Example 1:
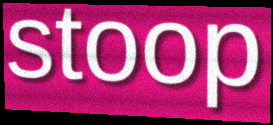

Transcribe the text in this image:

stoop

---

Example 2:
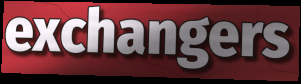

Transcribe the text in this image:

exchangers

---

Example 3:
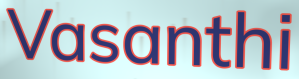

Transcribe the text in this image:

Vasanthi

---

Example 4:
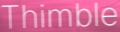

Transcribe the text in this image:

Thimble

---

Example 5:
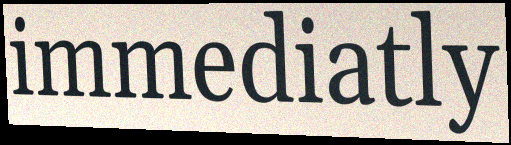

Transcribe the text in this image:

immediatly